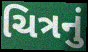
ચિત્રનું